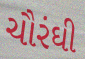
ચૌરંઘી